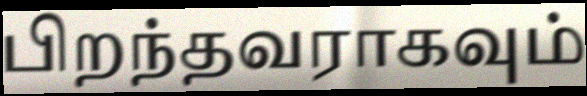
பிறந்தவராகவும்